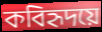
কবিহৃদয়ে